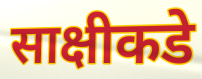
साक्षीकडे